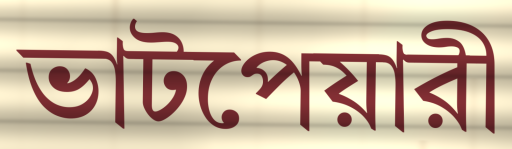
ভাটপেয়ারী